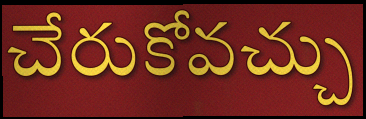
చేరుకోవచ్చు